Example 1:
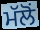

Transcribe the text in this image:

ਮੱਲੋਂ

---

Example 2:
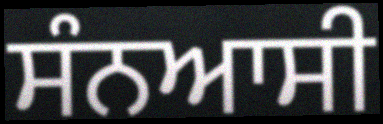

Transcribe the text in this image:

ਸੰਨਆਸੀ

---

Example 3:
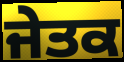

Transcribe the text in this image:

ਜੇਤਕ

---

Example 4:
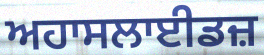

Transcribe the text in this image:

ਅਹਾਸਲਾਈਡਜ਼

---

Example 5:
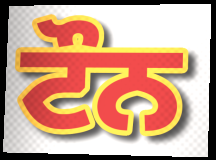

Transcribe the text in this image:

ਟੌਨ